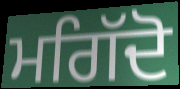
ਮਗਿੱਦੋ